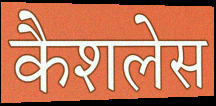
कैशलेस